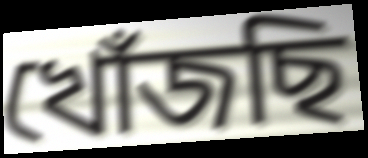
খোঁজছি